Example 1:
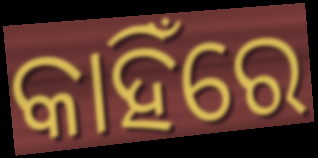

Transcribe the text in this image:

କାହିଁରେ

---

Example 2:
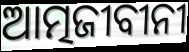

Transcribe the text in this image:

ଆତ୍ମଜୀବୀନୀ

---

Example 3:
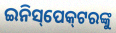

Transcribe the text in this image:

ଇନିସ୍‌ପେକ୍‍ଟରଙ୍କୁ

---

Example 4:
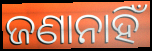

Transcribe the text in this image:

ଜଣାନାହିଁ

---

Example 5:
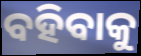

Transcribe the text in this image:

ବହିବାକୁ